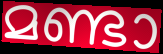
മണ്ടാ